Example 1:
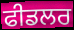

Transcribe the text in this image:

ਫੀਡਲਰ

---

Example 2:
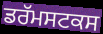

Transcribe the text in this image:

ਡਰੱਮਸਟਕਸ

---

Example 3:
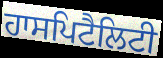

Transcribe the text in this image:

ਹਾਸਪਿਟੈਲਿਟੀ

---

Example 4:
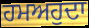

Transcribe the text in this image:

ਹਮਅਹੁਦਾ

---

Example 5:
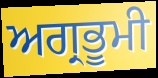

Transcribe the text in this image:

ਅਗ੍ਰਭੂਮੀ